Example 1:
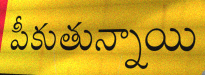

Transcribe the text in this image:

పీకుతున్నాయి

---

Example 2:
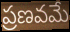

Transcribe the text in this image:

ప్రణవమే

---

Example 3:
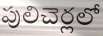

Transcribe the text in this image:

పులిచెర్లలో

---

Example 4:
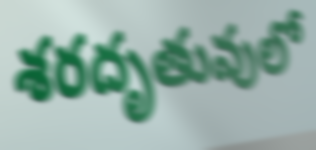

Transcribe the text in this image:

శరదృతువులో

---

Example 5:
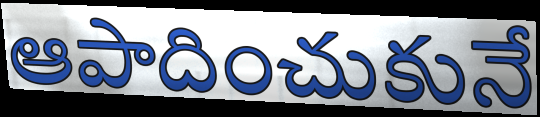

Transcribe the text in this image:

ఆపాదించుకునే